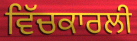
ਵਿੱਚਕਾਰਲੀ